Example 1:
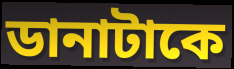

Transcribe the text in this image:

ডানাটাকে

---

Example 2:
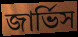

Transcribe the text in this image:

জার্ভিস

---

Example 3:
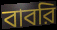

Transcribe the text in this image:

বাবরি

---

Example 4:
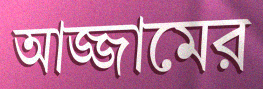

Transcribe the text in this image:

আজ্জামের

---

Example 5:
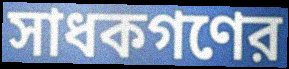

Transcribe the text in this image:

সাধকগণের